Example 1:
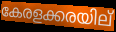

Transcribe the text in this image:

കേരളക്കരയില്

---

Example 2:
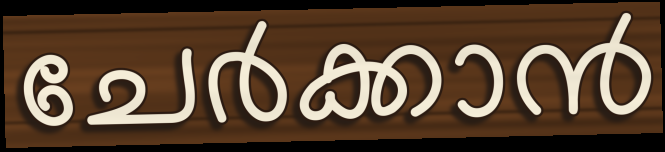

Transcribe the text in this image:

ചേർക്കാൻ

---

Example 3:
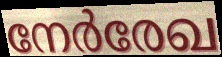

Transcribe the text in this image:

നേർരേഖ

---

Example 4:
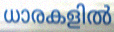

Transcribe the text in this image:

ധാരകളിൽ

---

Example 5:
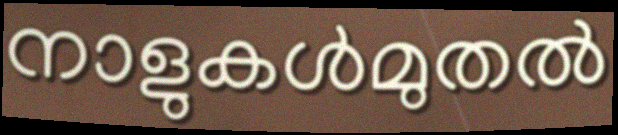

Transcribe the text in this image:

നാളുകൾമുതൽ